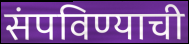
संपविण्याची